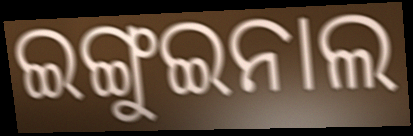
ଇଙ୍ଗୁଇନାଲ